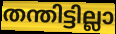
തന്തിട്ടില്ലാ